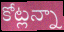
కోట్లన్నా